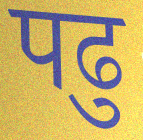
पढु